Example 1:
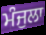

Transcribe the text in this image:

ਮੰਜੁਲਾ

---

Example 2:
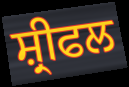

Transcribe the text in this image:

ਸ਼੍ਰੀਫਲ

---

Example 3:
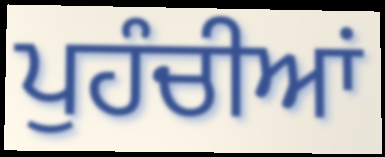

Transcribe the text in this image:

ਪੁਹੰਚੀਆਂ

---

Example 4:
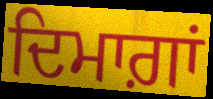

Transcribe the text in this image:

ਦਿਮਾਗ਼ਾਂ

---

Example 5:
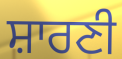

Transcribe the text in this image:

ਸ਼ਾਰਣੀ